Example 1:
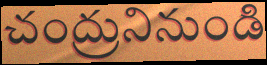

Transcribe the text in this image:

చంద్రునినుండి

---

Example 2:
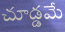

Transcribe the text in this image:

చూడ్డమే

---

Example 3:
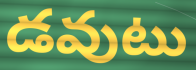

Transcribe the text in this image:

డవుటు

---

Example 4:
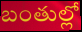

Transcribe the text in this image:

బంతుల్లో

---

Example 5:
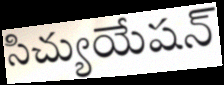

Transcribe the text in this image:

సిచ్యుయేషన్